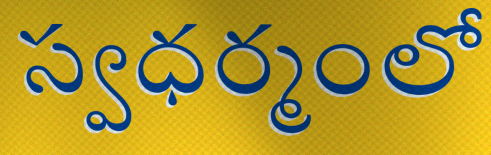
స్వధర్మంలో